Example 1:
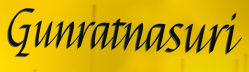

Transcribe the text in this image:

Gunratnasuri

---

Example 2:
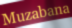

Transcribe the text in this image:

Muzabana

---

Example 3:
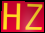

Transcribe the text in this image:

HZ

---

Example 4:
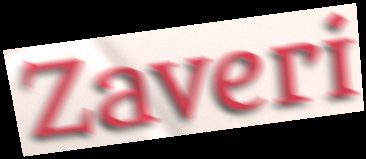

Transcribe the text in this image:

Zaveri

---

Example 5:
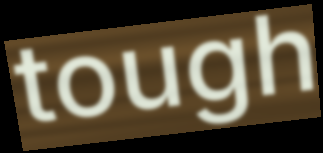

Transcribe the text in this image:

tough